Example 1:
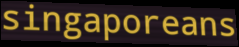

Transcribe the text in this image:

singaporeans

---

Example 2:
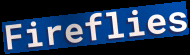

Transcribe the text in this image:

Fireflies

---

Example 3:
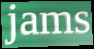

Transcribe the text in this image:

jams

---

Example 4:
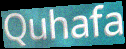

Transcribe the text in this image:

Quhafa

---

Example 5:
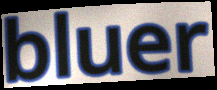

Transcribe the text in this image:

bluer